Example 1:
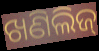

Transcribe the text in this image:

ଖଣିଲିଜ୍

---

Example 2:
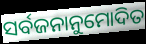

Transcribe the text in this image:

ସର୍ବଜନାନୁମୋଦିତ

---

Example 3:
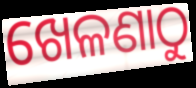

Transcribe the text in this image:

ଖେଳଣାଠୁ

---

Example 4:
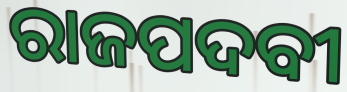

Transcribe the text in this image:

ରାଜପଦବୀ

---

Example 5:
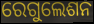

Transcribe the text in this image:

ରେଗୁଲେଶନ